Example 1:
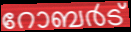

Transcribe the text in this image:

റോബർട്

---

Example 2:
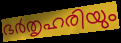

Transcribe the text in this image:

ഭർതൃഹരിയും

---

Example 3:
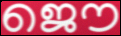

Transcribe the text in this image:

ജൌ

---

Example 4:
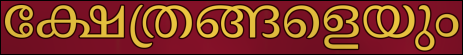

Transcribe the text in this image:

ക്ഷേത്രങ്ങളെയും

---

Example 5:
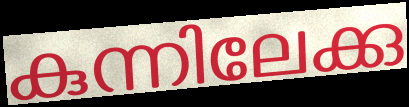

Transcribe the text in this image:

കുന്നിലേക്കു